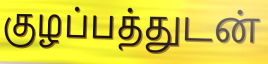
குழப்பத்துடன்